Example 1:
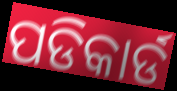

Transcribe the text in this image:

ପଡିକାର୍ଡ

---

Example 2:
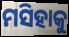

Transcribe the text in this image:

ମସିହାକୁ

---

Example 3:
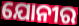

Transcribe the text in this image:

ଯୋନୀର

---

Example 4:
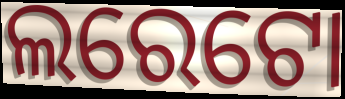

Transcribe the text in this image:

ଲରେଟୋ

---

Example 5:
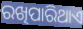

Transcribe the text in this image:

ରଖିପାରିଥାଏ